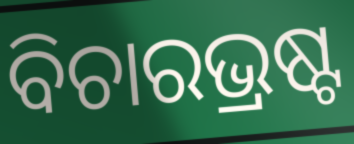
ବିଚାରଭ୍ରଷ୍ଟ